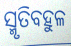
ସ୍ମୃତିବହୁଳ